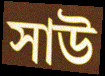
সাউ